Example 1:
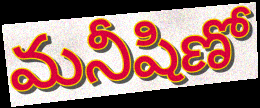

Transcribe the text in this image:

మనీషిణో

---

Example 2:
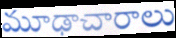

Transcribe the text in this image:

మూఢాచారాలు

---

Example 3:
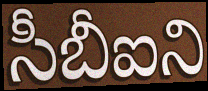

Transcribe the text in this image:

సీబీఐని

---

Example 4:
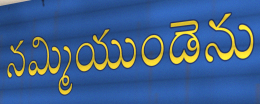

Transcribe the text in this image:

నమ్మియుండెను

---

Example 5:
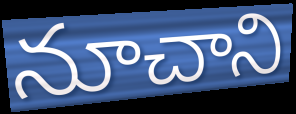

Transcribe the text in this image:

నూచాని